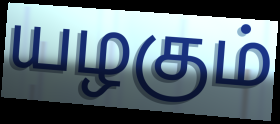
யழகும்